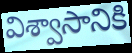
విశ్వాసానికి